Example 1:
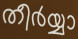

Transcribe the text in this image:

തീർയ്യാ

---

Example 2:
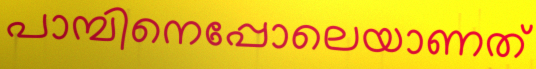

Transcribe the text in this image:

പാമ്പിനെപ്പോലെയാണത്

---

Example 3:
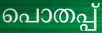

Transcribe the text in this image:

പൊതപ്പ്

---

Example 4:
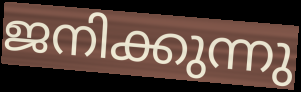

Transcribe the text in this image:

ജനിക്കുന്നു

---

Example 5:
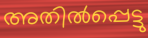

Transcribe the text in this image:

അതിൽപ്പെട്ടു